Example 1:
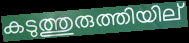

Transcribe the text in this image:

കടുത്തുരുത്തിയില്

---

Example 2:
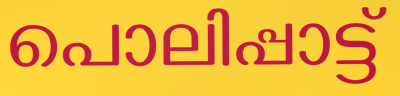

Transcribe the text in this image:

പൊലിപ്പാട്ട്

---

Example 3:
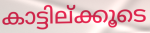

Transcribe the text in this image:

കാട്ടില്ക്കൂടെ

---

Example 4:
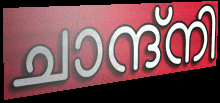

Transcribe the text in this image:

ചാന്ദ്നി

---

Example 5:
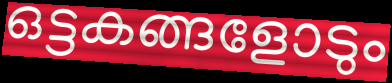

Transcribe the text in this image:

ഒട്ടകങ്ങളോടും